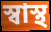
স্বাস্থ